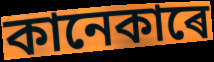
কানেকাৰে